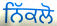
ਨਿੱਕਲੋ